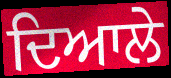
ਦਿਆਲੇ